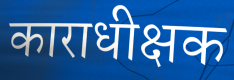
काराधीक्षक